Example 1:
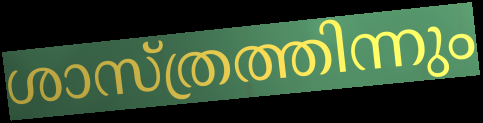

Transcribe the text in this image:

ശാസ്ത്രത്തിന്നും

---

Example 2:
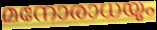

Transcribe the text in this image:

മനോരാധയും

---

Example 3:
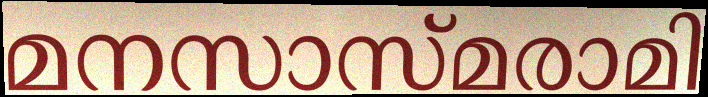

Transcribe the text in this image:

മനസാസ്മരാമി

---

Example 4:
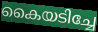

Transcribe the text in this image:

കൈയടിച്ചേ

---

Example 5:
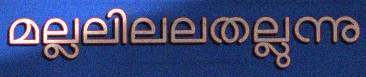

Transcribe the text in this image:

മല്ലലിലലതല്ലുന്നു